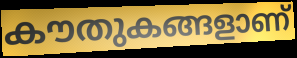
കൗതുകങ്ങളാണ്